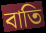
বাতি